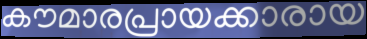
കൗമാരപ്രായക്കാരായ